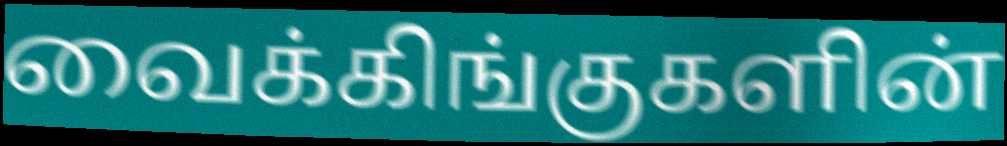
வைக்கிங்குகளின்